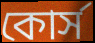
কোর্স